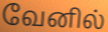
வேனில்